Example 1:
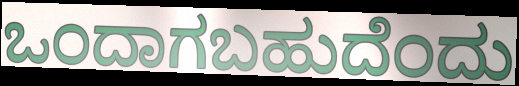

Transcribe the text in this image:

ಒಂದಾಗಬಹುದೆಂದು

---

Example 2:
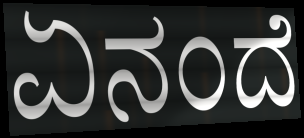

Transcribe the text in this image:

ಏನಂದೆ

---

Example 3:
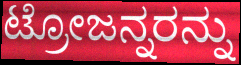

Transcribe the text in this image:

ಟ್ರೋಜನ್ನರನ್ನು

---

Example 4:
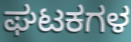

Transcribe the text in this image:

ಘಟಕಗಳ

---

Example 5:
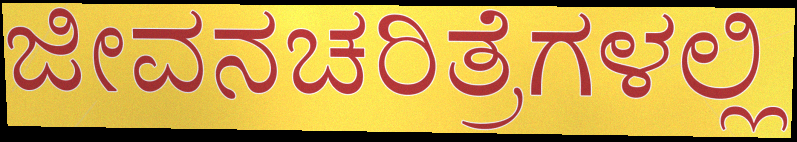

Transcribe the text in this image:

ಜೀವನಚರಿತ್ರೆಗಳಲ್ಲಿ